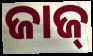
ଜାଜ୍